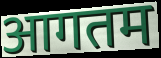
आगतम